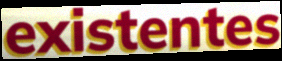
existentes